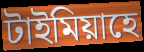
টাইমিয়াহে